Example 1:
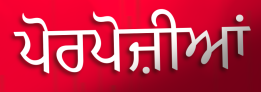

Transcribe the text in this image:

ਪੋਰਪੋਜ਼ੀਆਂ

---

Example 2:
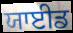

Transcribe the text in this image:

ਯਾਈਡ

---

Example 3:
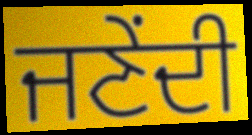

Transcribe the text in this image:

ਜਣੇਂਦੀ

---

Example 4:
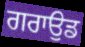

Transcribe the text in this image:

ਗਰਾਉਡ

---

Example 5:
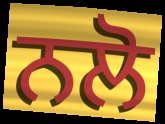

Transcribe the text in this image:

ਨਲੋ